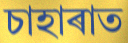
চাহাৰাত